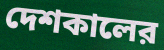
দেশকালের